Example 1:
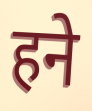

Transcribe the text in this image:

हने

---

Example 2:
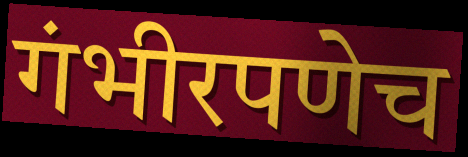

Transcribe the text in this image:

गंभीरपणेच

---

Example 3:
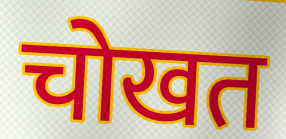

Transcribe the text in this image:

चोखत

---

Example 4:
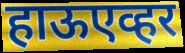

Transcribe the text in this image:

हाऊएव्हर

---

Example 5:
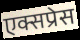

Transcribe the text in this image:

एक्सप्रेस